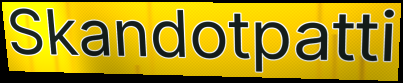
Skandotpatti